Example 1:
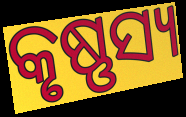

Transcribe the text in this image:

କୃଷ୍ଣସ୍ୟ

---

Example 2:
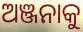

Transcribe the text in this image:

ଅଞ୍ଜନାକୁ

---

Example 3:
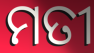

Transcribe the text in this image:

ମତୀ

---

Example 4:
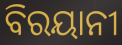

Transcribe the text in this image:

ବିରୟାନୀ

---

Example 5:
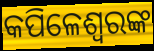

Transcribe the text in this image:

କପିଳେଶ୍ବରଙ୍କ